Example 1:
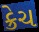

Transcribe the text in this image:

ક્રેચ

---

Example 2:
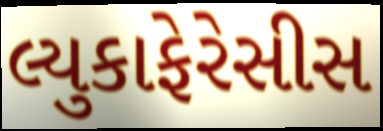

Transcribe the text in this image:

લ્યુકાફેરેસીસ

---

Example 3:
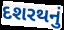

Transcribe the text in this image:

દશરથનું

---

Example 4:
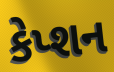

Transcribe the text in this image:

કેપ્શન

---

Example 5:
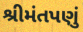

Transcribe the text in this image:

શ્રીમંતપણું